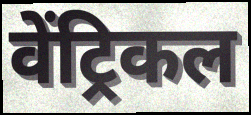
वेंट्रिकल